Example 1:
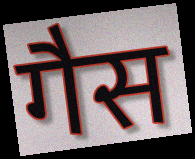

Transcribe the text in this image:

गैस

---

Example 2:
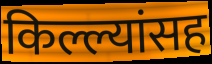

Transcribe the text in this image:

किल्ल्यांसह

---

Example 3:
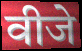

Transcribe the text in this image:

वीजे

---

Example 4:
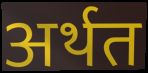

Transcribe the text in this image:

अर्थत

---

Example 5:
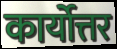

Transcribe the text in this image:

कार्योत्तर